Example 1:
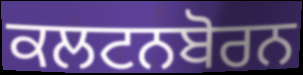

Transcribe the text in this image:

ਕਲਟਨਬੋਰਨ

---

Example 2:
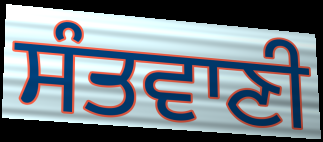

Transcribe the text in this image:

ਸੰਤਵਾਣੀ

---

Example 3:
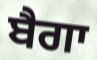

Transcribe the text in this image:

ਬੈਗਾ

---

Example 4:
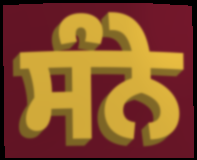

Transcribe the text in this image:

ਸੰਨੇ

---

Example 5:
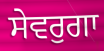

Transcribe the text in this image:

ਸੇਵਰੁਗਾ